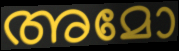
അമോ